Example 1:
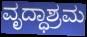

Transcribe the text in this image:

ವೃದ್ಧಾಶ್ರಮ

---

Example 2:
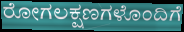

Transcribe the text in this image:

ರೋಗಲಕ್ಷಣಗಳೊಂದಿಗೆ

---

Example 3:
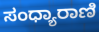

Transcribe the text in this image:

ಸಂಧ್ಯಾರಾಣಿ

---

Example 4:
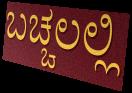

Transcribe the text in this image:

ಬಚ್ಚಲಲ್ಲಿ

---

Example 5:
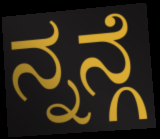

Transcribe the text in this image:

ನ್ನನ್ಗೆ